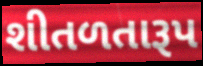
શીતળતારૂપ